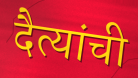
दैत्यांची